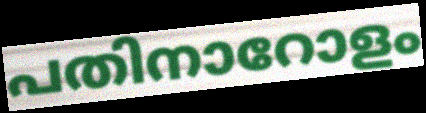
പതിനാറോളം